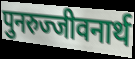
पुनरुज्जीवनार्थ